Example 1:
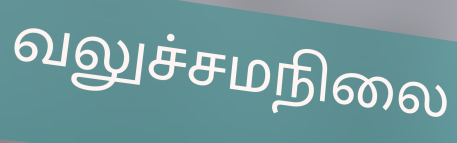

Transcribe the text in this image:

வலுச்சமநிலை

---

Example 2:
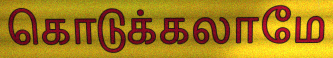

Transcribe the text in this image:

கொடுக்கலாமே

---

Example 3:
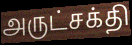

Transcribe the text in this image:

அருட்சக்தி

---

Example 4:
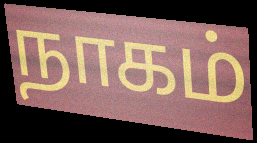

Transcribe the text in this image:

நாகம்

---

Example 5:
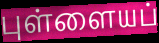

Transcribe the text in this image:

புள்ளையப்